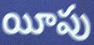
యీపు